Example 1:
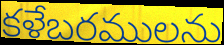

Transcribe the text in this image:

కళేబరములను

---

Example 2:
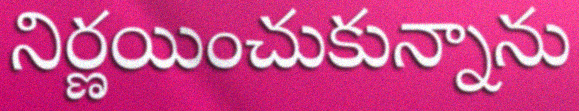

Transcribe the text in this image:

నిర్ణయించుకున్నాను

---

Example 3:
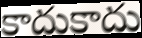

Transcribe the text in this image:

కాదుకాదు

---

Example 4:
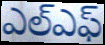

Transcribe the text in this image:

ఎల్ఎఫ్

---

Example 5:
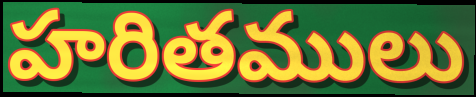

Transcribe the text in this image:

హరితములు